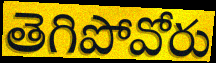
తెగిపోవోరు